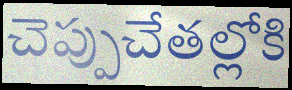
చెప్పుచేతల్లోకి